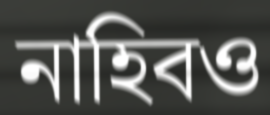
নাহিবও